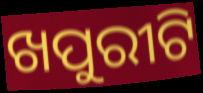
ଖପୁରୀଟି